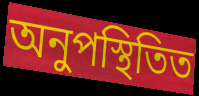
অনুপস্থিতিত